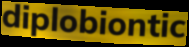
diplobiontic